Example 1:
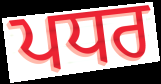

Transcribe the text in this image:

ਪਧਰ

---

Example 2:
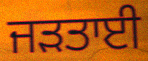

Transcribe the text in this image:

ਜੜਤਾਈ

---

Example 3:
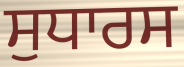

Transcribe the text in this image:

ਸੁਧਾਰਸ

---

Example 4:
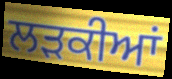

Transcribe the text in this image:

ਲੜਕੀਆਂ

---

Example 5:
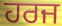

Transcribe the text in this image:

ਹਰਜ